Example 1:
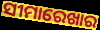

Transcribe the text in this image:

ସୀମାରେଖାର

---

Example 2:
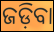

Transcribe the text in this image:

ଜଡ଼ିବା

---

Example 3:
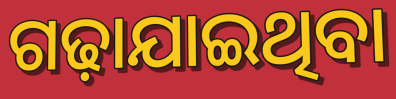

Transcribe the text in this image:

ଗଢ଼ାଯାଇଥିବା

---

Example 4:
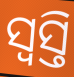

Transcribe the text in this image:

ସ୍ଵସ୍ତି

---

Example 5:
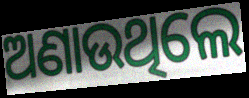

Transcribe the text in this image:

ଅଣାଉଥିଲେ